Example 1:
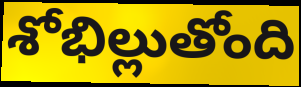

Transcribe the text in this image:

శోభిల్లుతోంది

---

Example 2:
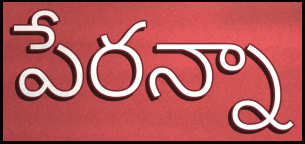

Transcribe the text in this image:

పేరన్నా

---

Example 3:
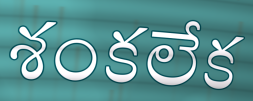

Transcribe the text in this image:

శంకలేక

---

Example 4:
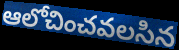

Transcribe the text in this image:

ఆలోచించవలసిన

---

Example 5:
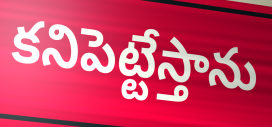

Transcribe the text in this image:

కనిపెట్టేస్తాను